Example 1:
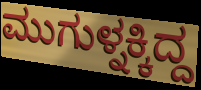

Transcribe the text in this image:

ಮುಗುಳ್ನಕ್ಕಿದ್ದ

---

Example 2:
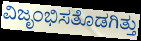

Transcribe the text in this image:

ವಿಜೃಂಭಿಸತೊಡಗಿತ್ತು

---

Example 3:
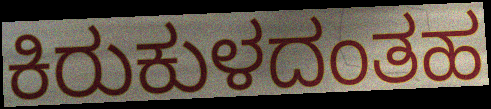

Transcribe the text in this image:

ಕಿರುಕುಳದಂತಹ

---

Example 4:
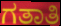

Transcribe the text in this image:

ಗತಾತಿ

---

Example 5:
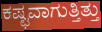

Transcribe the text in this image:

ಕಷ್ಟವಾಗುತ್ತಿತ್ತು